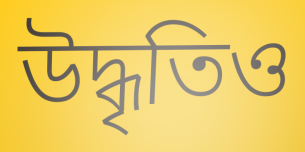
উদ্ধৃতিও